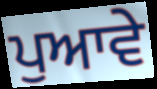
ਪੁਆਵੇ